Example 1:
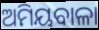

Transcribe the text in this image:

ଅମିୟବାଳା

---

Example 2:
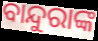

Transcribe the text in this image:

ବାନ୍ଦୁରାଙ୍କ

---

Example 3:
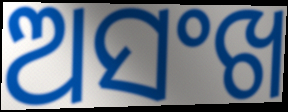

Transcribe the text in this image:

ଅସଂଖ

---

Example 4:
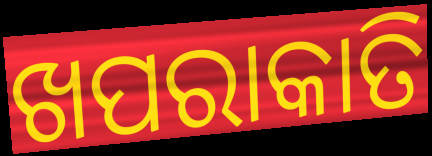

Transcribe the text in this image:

ଖପରାକାତି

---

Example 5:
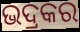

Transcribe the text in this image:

ଭଦ୍ରକର